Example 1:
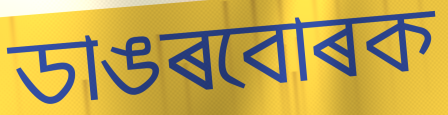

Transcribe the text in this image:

ডাঙৰবোৰক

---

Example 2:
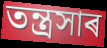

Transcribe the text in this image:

তন্ত্ৰসাৰ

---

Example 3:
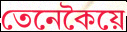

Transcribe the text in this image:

তেনেকৈয়ে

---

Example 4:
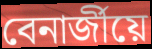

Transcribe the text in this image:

বেনাৰ্জীয়ে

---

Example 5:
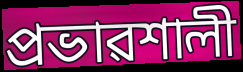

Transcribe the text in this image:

প্ৰভাৱশালী